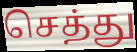
செத்து